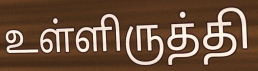
உள்ளிருத்தி